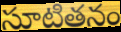
సూటితనం